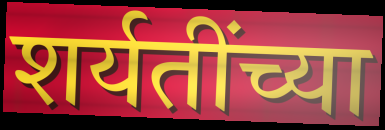
शर्यतींच्या